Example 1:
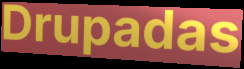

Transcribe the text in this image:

Drupadas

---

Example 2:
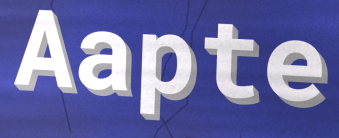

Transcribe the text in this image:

Aapte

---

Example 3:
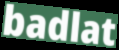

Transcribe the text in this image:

badlat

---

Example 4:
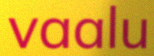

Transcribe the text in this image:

vaalu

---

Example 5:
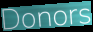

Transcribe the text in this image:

Donors